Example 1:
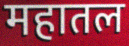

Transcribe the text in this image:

महातल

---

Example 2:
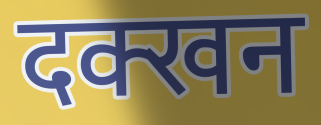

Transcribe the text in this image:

दक्खन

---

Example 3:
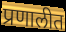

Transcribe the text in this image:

प्रणालीत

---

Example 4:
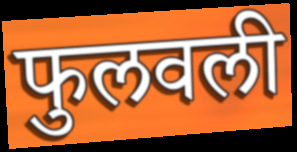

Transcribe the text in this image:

फुलवली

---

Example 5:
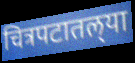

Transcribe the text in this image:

चित्रपटातल्या